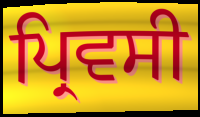
ਪ੍ਰਿਵਸੀ